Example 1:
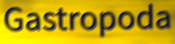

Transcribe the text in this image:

Gastropoda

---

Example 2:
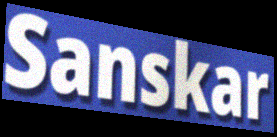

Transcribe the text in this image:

Sanskar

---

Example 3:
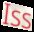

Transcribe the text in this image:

Iss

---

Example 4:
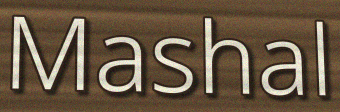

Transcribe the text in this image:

Mashal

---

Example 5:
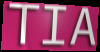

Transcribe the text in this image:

TIA